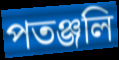
পতঞ্জলি